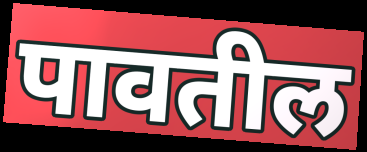
पावतील